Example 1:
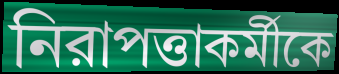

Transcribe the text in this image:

নিরাপত্তাকর্মীকে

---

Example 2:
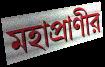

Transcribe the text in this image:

মহাপ্রাণীর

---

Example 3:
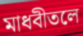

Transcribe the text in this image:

মাধবীতলে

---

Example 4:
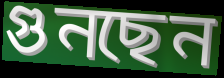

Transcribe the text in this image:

গুনছেন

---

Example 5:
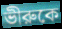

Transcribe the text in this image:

ভীরুকে